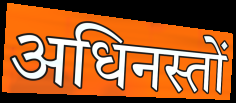
अधिनस्तों